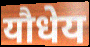
यौधेय